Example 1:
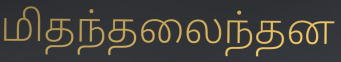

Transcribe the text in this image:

மிதந்தலைந்தன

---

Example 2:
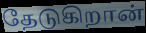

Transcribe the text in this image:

தேடுகிறான்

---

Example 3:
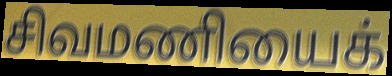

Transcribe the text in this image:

சிவமணியைக்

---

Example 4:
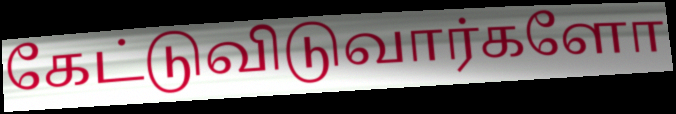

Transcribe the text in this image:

கேட்டுவிடுவார்களோ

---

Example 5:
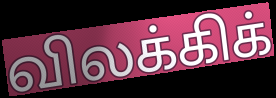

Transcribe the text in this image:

விலக்கிக்